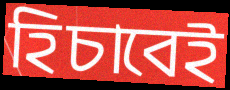
হিচাবেই